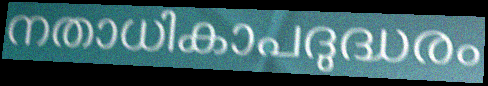
നതാധികാപദുദ്ധരം